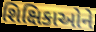
શિક્ષિકાઓને